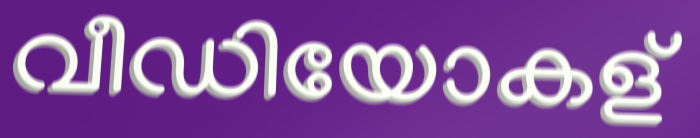
വീഡിയോകള്